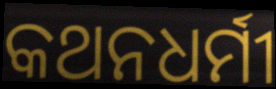
କଥନଧର୍ମୀ